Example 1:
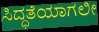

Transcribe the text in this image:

ಸಿದ್ಧತೆಯಾಗಲೀ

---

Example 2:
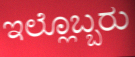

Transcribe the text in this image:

ಇಲ್ಲೊಬ್ಬರು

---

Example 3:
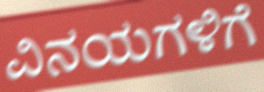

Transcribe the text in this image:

ವಿನಯಗಳಿಗೆ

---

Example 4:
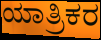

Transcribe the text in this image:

ಯಾತ್ರಿಕರ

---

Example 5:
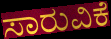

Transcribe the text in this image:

ಸಾರುವಿಕೆ